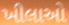
ખીલાઓ